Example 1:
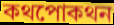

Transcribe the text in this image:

কথপোকথন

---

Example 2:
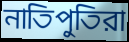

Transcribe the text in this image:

নাতিপুতিরা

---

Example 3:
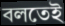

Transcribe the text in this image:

বলতেই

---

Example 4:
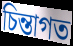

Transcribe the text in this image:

চিন্তাগত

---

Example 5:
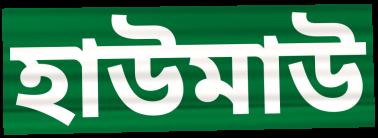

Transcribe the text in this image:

হাউমাউ